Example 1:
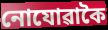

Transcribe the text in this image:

নোযোৱাকৈ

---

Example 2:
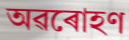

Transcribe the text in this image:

অৱৰোহণ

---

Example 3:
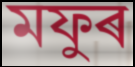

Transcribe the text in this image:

মফুৰ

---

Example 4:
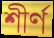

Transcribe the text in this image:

শীৰ্ণ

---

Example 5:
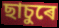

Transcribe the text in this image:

ছাচুৰে